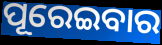
ପୂରେଇବାର